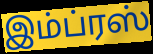
இம்ப்ரஸ்